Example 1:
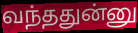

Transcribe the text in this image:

வந்ததுன்னு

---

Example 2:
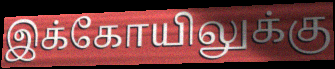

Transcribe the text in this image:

இக்கோயிலுக்கு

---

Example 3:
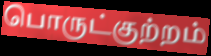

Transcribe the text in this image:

பொருட்குற்றம்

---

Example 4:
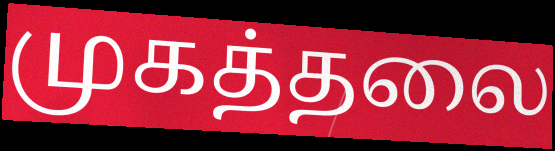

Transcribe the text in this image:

முகத்தலை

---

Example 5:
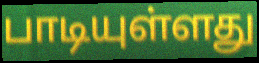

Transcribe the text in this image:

பாடியுள்ளது